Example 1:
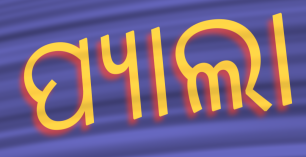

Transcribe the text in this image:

ପ୍ୟାଲା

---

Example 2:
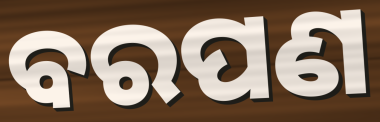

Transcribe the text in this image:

ବରପଣ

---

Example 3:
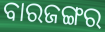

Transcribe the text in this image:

ବାରଜଙ୍ଗର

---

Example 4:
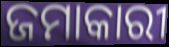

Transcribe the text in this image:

ଜମାକାରୀ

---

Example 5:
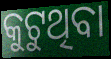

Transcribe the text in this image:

କୁଟୁଥିବା